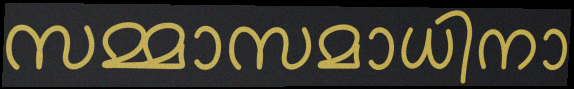
സമ്മാസമാധിനാ